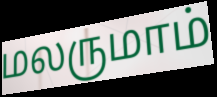
மலருமாம்